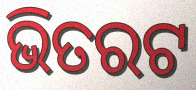
ଭିତରଟ